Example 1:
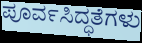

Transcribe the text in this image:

ಪೂರ್ವಸಿದ್ಧತೆಗಳು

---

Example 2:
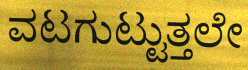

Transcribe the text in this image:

ವಟಗುಟ್ಟುತ್ತಲೇ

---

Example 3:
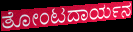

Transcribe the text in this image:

ತೋಂಟದಾರ್ಯನ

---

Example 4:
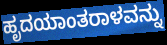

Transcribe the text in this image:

ಹೃದಯಾಂತರಾಳವನ್ನು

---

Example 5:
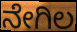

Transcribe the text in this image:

ನೇಗಿಲ